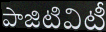
పాజిటివిటీ